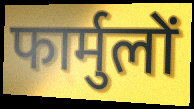
फार्मुलों